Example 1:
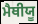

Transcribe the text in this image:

ਮੈਥੀਯੂ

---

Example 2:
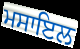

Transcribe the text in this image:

ਮਸਾਇਲ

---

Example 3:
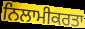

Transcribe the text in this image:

ਨਿਲਾਮੀਕਰਤਾ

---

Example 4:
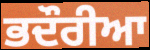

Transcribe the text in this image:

ਭਦੌਰੀਆ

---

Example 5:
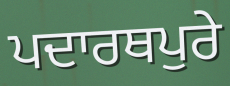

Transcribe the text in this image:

ਪਦਾਰਥਪੁਰੇ